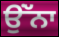
ਉਂੱਨਾ